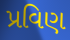
પ્રવિણ